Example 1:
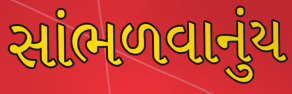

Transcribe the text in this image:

સાંભળવાનુંય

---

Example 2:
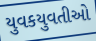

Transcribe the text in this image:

યુવકયુવતીઓ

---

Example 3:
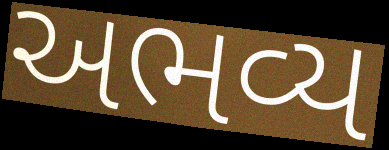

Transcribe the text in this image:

અભવ્ય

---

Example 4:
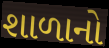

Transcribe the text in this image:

શાળાનો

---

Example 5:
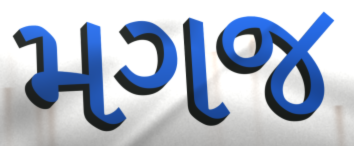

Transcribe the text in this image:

મગજ